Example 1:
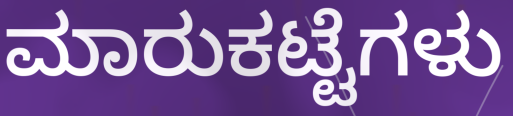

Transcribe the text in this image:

ಮಾರುಕಟ್ಟೆಗಳು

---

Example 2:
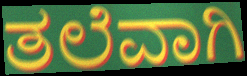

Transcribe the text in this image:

ತಲೆವಾಗಿ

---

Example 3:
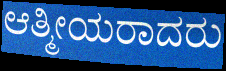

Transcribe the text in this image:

ಆತ್ಮೀಯರಾದರು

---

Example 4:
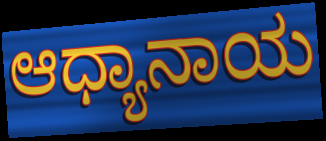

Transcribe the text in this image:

ಆಧ್ಯಾನಾಯ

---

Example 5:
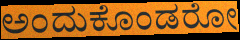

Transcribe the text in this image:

ಅಂದುಕೊಂಡರೋ